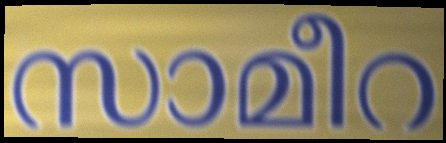
സാമീറ